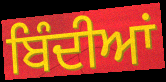
ਬਿੰਦੀਆਂ